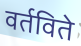
वर्तविते